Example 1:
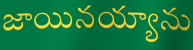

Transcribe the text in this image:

జాయినయ్యాను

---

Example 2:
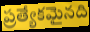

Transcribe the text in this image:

ప్రత్యేకమైనది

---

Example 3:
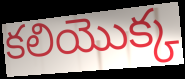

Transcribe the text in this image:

కలియొక్క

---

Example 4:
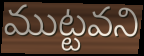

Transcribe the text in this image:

ముట్టవని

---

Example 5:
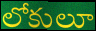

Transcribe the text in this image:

లోకులూ